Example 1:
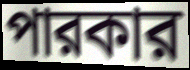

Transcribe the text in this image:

পারকার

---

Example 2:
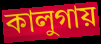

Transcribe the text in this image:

কালুগায়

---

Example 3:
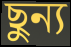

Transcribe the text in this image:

ছুন্য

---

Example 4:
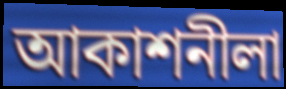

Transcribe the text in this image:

আকাশনীলা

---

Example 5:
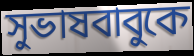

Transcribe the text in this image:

সুভাষবাবুকে